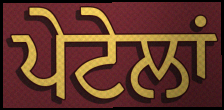
ਪੇਟੇਲਾਂ